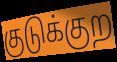
குடுக்குற